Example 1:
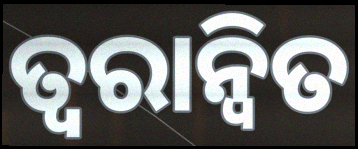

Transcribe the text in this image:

ତ୍ଵରାନ୍ବିତ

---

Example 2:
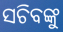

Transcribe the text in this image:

ସଚିବଙ୍କୁ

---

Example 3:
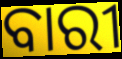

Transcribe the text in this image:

ବାରୀ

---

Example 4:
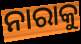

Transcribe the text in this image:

ନାରାକୁ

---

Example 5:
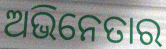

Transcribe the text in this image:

ଅଭିନେତାର